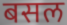
बसल